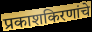
प्रकाशकिरणांचे